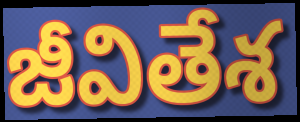
జీవితేశ